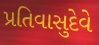
પ્રતિવાસુદેવે